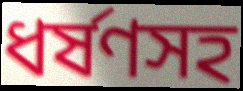
ধর্ষণসহ